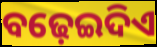
ବଢ଼େଇଦିଏ